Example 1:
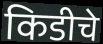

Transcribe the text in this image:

किडीचे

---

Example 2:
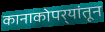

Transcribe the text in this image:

कानाकोपर्‍यांतून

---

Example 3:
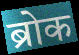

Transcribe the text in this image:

ब्रोक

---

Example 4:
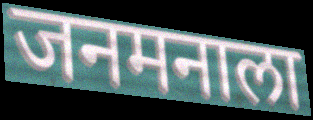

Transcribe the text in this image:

जनमनाला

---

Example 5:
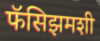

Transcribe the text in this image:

फॅसिझमशी